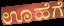
ಊಹೆಗೆ